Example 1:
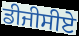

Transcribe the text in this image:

ਡੀਜੀਸੀਏ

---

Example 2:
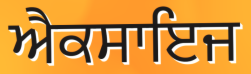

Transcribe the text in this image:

ਐਕਸਾਇਜ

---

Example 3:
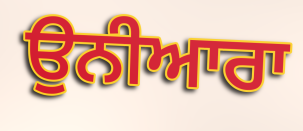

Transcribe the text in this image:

ਉਨੀਆਰਾ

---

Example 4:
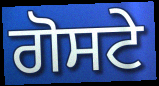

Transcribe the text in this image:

ਗੋਸਟੇ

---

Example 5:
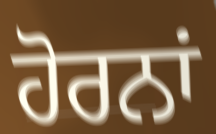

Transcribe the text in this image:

ਹੋਰਨਾਂ